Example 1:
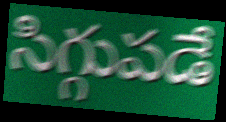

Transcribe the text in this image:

సిగ్గుపడే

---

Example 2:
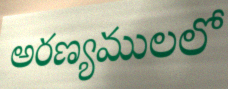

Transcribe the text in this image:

అరణ్యములలో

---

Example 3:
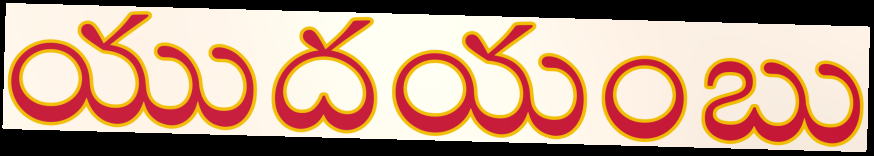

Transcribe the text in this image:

యుదయంబు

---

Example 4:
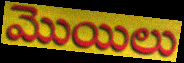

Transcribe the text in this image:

మొయిలు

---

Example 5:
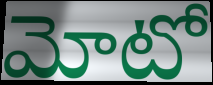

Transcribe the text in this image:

మోటో